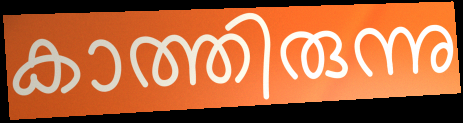
കാത്തിരുന്നു